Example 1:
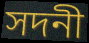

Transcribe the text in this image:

সদনী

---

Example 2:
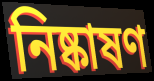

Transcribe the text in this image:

নিষ্কাষণ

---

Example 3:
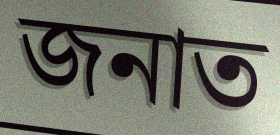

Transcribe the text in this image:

জনাত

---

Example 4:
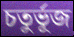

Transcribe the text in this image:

চতুৰ্ভূজ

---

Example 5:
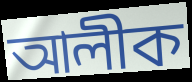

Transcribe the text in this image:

আলীক